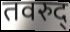
तवरुद्